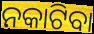
ନକାଟିବା